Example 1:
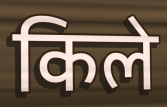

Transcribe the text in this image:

किले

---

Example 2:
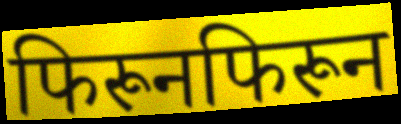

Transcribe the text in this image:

फिरूनफिरून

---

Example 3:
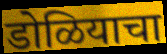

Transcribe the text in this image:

डोळियाचा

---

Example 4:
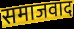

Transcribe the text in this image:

समाजवाद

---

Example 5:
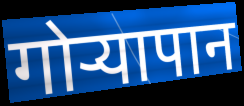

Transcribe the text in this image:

गोऱ्यापान